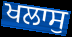
ਖਲਾਸੁ